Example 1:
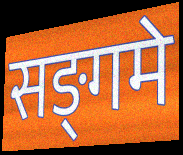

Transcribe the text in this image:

सङ्गमे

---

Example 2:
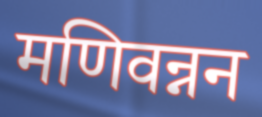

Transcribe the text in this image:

मणिवन्नन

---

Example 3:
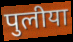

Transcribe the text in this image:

पुलीया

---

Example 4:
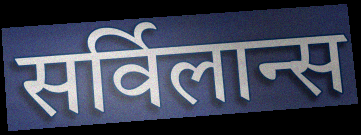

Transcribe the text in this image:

सर्विलान्स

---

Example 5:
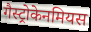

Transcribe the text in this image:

गैस्ट्रोकेनमियस